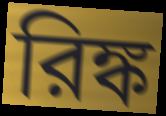
রিঙ্ক